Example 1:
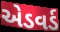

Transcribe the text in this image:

એડવર્ડ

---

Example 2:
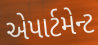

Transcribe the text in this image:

એપાર્ટમેન્ટ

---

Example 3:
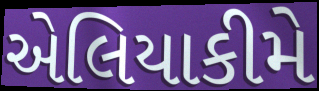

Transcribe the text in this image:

એલિયાકીમે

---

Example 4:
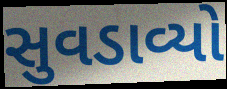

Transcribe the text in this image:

સુવડાવ્યો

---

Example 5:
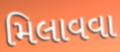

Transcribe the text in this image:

મિલાવવા